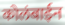
कोलंबाईन